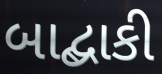
બાદ્બાકી